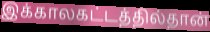
இக்காலகட்டத்தில்தான்